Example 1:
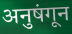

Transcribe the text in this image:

अनुषंगून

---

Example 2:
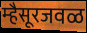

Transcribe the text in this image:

म्हैसूरजवळ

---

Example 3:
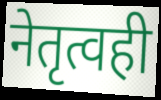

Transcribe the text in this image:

नेतृत्वही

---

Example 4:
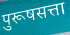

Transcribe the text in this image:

पुरूषसत्ता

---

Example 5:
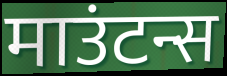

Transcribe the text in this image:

माउंटन्स